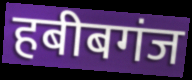
हबीबगंज